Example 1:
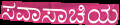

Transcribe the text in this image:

ಸವಾಸಾಚಿಯ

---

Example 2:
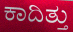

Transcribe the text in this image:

ಕಾದಿತ್ತು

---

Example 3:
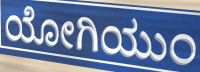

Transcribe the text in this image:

ಯೋಗಿಯುಂ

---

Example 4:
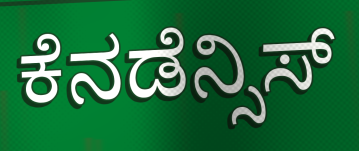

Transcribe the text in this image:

ಕೆನಡೆನ್ಸಿಸ್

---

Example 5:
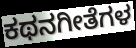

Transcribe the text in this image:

ಕಥನಗೀತೆಗಳ